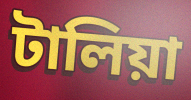
টালিয়া